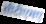
सीटीएमए